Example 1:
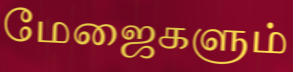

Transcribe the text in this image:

மேஜைகளும்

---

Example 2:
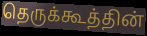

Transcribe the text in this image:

தெருக்கூத்தின்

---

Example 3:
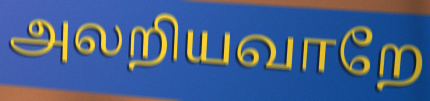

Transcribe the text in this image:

அலறியவாறே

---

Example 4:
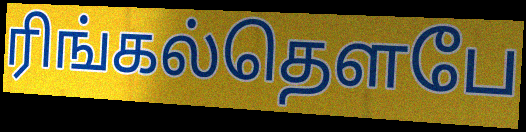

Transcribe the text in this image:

ரிங்கல்தௌபே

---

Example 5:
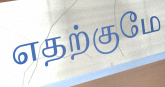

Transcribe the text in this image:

எதற்குமே